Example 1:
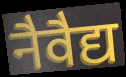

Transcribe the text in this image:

नैवैद्य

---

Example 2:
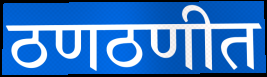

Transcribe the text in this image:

ठणठणीत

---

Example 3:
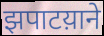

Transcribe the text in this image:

झपाटय़ाने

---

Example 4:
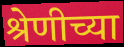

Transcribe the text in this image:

श्रेणीच्या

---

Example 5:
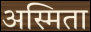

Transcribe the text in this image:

अस्मिता